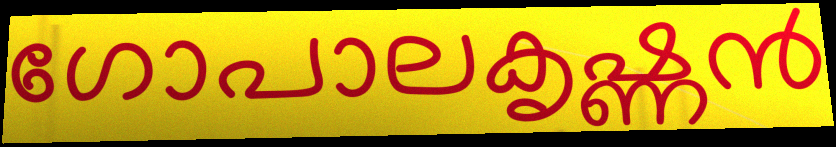
ഗോപാലകൃഷ്ണൻ